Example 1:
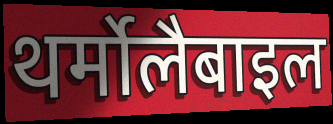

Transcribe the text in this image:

थर्मोलैबाइल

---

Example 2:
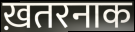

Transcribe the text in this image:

ख़तरनाक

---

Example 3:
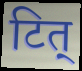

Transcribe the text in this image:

टित्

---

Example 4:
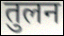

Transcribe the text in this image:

तुलन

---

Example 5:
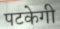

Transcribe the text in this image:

पटकेगी